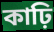
কাঢ়ি